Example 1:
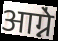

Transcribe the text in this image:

आग्ने॑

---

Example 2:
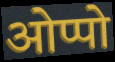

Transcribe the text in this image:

ओप्पो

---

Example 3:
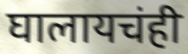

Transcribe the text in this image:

घालायचंही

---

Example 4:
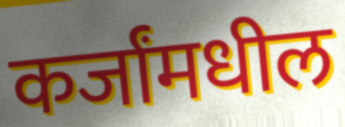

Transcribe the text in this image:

कर्जांमधील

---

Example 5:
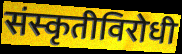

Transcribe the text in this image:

संस्कृतीविरोधी